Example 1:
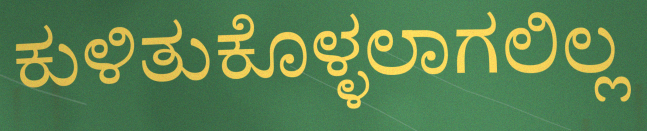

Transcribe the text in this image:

ಕುಳಿತುಕೊಳ್ಳಲಾಗಲಿಲ್ಲ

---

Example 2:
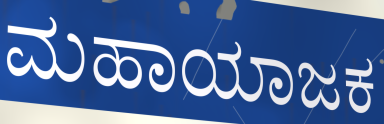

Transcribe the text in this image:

ಮಹಾಯಾಜಕ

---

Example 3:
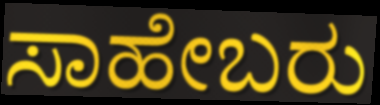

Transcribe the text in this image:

ಸಾಹೇಬರು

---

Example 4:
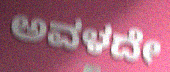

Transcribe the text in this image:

ಅವಳದೇ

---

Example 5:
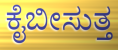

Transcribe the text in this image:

ಕೈಬೀಸುತ್ತ